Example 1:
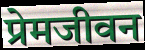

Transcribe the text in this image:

प्रेमजीवन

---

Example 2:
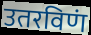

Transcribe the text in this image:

उतरविणं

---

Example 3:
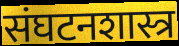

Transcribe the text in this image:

संघटनशास्त्र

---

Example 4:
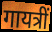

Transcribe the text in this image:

गायत्रीं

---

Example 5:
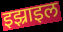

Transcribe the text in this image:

इझ्राइल